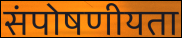
संपोषणीयता